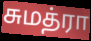
சுமத்ரா